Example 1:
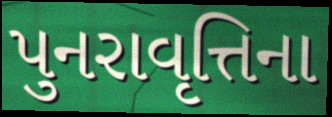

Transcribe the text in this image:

પુનરાવૃત્તિના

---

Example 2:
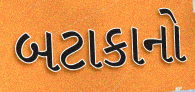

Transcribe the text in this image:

બટાકાનો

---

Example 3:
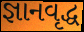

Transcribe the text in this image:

જ્ઞાનવૃદ્ધ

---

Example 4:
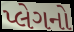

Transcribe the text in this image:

પ્લેગનો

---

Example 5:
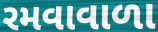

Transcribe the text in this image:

રમવાવાળા